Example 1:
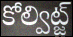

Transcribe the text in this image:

కోల్విట్జ్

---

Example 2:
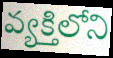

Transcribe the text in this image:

వ్యక్తిలోని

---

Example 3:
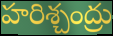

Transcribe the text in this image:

హరిశ్చంద్రు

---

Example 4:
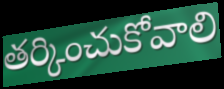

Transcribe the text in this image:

తర్కించుకోవాలి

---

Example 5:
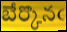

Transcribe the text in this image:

బేర్కొనఁ